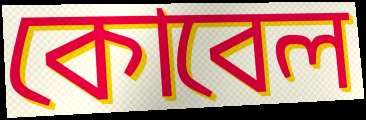
কোবেল